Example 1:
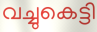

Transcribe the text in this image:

വച്ചുകെട്ടി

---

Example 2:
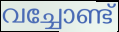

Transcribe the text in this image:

വച്ചോണ്ട്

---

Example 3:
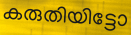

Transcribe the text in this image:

കരുതിയിട്ടോ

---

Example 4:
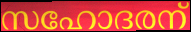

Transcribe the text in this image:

സഹോദരന്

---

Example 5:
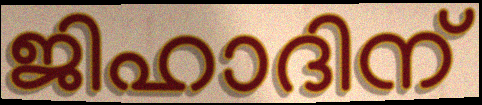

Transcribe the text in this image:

ജിഹാദിന്